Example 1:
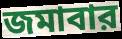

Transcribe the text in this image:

জমাবার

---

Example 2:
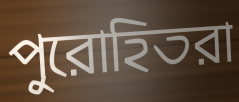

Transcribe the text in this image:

পুরোহিতরা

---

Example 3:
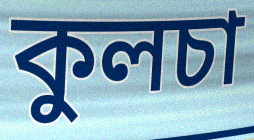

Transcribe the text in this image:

কুলচা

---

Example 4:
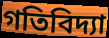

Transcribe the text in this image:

গতিবিদ্যা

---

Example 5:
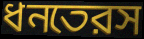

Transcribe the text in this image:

ধনতেরস